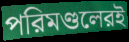
পরিমণ্ডলেরই